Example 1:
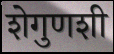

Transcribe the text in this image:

शेगुणशी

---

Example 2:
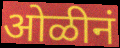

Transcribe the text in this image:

ओळीनं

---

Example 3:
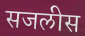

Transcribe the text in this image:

सजलीस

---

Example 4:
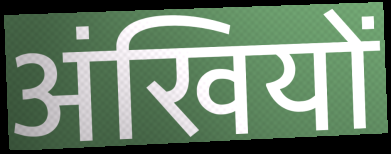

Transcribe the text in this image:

अंखियों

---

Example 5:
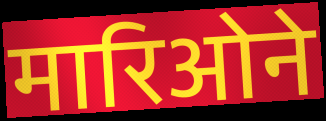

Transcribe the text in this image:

मारिओने